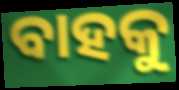
ବାହକୁ